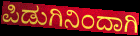
ಪಿಡುಗಿನಿಂದಾಗಿ